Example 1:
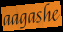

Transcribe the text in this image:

aagashe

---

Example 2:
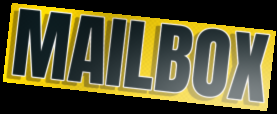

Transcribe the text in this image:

MAILBOX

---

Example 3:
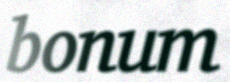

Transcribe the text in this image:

bonum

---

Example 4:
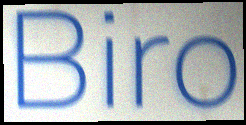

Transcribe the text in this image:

Biro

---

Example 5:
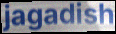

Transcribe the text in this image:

jagadish